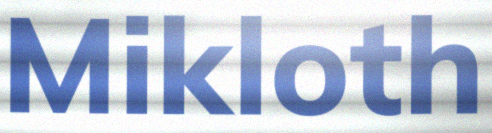
Mikloth